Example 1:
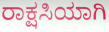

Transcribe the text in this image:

ರಾಕ್ಷಸಿಯಾಗಿ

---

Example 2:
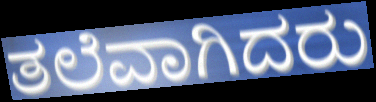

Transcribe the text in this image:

ತಲೆವಾಗಿದರು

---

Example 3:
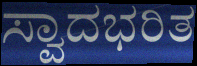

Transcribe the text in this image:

ಸ್ವಾದಭರಿತ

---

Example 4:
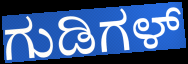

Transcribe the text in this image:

ಗುಡಿಗಳ್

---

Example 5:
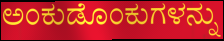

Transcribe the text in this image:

ಅಂಕುಡೊಂಕುಗಳನ್ನು